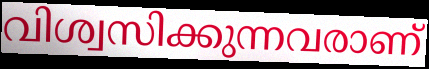
വിശ്വസിക്കുന്നവരാണ്